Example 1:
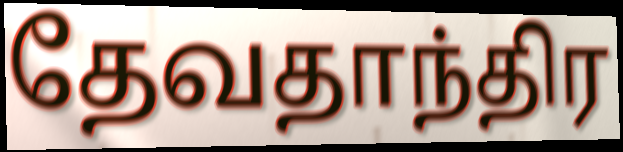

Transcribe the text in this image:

தேவதாந்திர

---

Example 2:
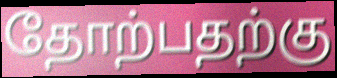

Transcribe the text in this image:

தோற்பதற்கு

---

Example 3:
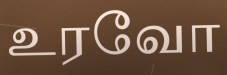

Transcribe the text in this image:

உரவோ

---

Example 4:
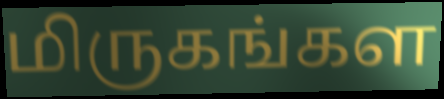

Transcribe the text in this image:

மிருகங்கள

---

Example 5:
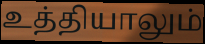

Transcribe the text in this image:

உத்தியாலும்